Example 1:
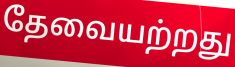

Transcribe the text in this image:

தேவையற்றது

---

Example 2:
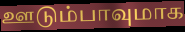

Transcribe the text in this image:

ஊடும்பாவுமாக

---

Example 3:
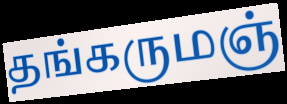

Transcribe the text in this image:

தங்கருமஞ்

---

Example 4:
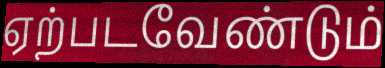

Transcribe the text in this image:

ஏற்படவேண்டும்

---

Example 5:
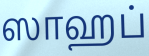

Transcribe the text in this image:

ஸாஹப்